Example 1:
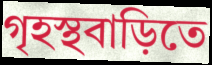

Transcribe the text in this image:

গৃহস্থবাড়িতে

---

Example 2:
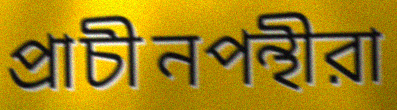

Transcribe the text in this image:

প্রাচীনপন্থীরা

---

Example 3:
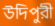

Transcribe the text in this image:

উদিপুরী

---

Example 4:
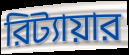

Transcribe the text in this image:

রিট্যায়ার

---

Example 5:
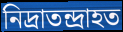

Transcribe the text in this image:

নিদ্রাতন্দ্রাহত